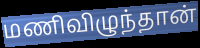
மணிவிழுந்தான்